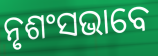
ନୃଶଂସଭାବେ